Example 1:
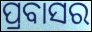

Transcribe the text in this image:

ପ୍ରବାସର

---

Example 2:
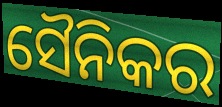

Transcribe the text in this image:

ସୈନିକର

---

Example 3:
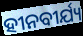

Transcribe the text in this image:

ହୀନବୀର୍ଯ୍ୟ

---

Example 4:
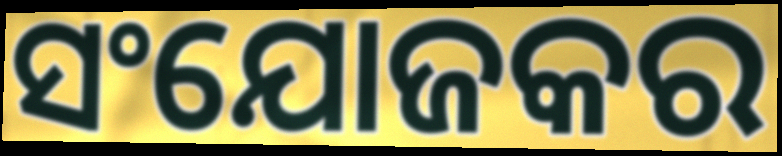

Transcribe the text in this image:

ସଂଯୋଜକର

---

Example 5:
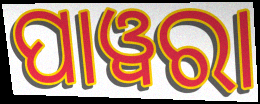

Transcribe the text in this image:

ପାୱରା